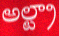
అల్ట్రా